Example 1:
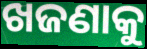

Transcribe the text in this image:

ଖଜଣାକୁ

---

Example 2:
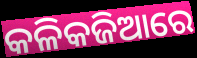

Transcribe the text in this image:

କଳିକଜିଆରେ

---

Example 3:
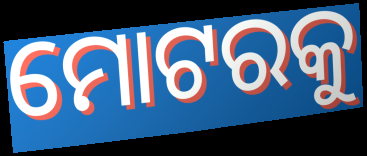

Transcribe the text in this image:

ମୋଟରକୁ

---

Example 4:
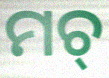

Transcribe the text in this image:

ମଚ୍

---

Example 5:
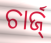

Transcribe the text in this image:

ଚାର୍ଜ୍